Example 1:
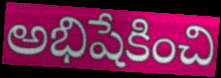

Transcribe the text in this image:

అభిషేకించి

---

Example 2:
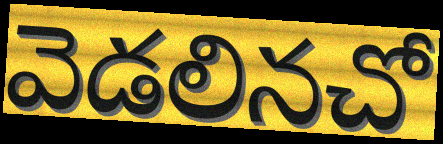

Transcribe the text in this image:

వెడలినచో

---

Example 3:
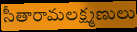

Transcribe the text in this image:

సీతారామలక్ష్మణులు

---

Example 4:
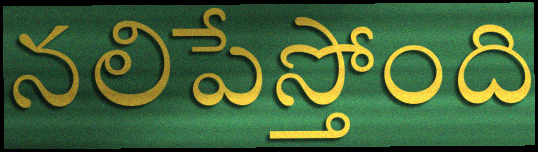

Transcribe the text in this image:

నలిపేస్తోంది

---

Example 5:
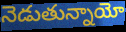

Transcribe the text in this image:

నెడుతున్నాయో